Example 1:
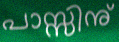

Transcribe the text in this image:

പാസ്സിനു്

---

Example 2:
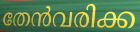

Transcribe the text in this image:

തേൻവരിക്ക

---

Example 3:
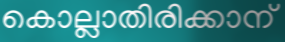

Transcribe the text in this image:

കൊല്ലാതിരിക്കാന്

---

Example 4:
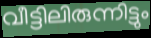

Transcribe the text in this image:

വീട്ടിലിരുന്നിട്ടും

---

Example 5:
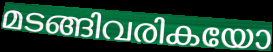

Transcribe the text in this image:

മടങ്ങിവരികയോ